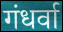
गंधर्वा